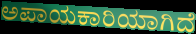
ಅಪಾಯಕಾರಿಯಾಗಿದೆ